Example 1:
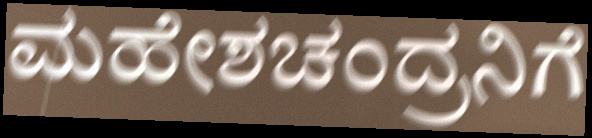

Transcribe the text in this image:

ಮಹೇಶಚಂದ್ರನಿಗೆ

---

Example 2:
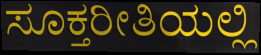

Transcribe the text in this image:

ಸೂಕ್ತರೀತಿಯಲ್ಲಿ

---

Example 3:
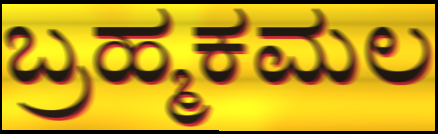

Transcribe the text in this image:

ಬ್ರಹ್ಮಕಮಲ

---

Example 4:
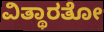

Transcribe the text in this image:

ವಿತ್ಥಾರತೋ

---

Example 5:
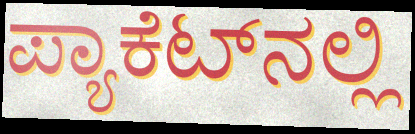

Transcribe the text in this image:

ಪ್ಯಾಕೆಟ್‌ನಲ್ಲಿ